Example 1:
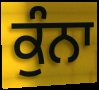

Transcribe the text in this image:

ਕੁੰਨਾ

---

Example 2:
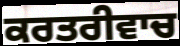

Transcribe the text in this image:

ਕਰਤਰੀਵਾਚ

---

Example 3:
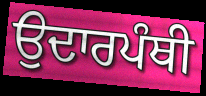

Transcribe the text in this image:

ਉਦਾਰਪੰਥੀ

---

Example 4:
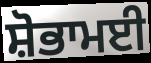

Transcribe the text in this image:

ਸ਼ੋਭਾਮਈ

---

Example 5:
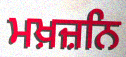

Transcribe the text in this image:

ਮਖ਼ਜ਼ਨਿ